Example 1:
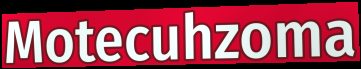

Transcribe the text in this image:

Motecuhzoma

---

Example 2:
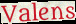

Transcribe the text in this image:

Valens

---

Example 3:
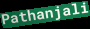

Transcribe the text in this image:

Pathanjali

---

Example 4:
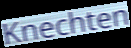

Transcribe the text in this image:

Knechten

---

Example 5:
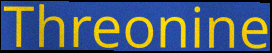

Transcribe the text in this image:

Threonine